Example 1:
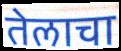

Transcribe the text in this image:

तेलाचा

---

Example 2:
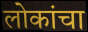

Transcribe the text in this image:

लोकांचा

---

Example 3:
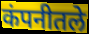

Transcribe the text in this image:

कंपनीतले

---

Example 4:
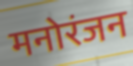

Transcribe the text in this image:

मनोरंजन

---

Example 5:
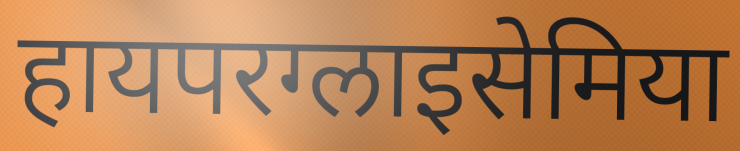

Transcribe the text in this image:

हायपरग्लाइसेमिया